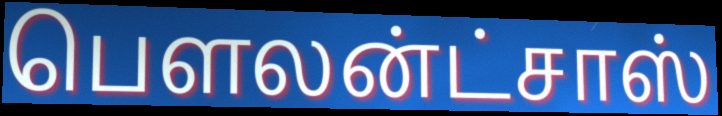
பௌலன்ட்சாஸ்